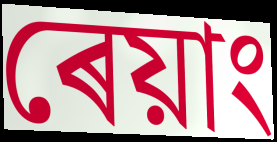
ৰেয়াং